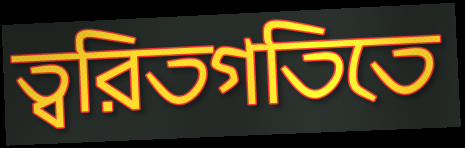
ত্বরিতগতিতে